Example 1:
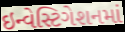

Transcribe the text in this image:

ઇન્વેસ્ટિગેશનમાં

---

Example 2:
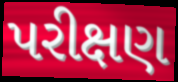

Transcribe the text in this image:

પરીક્ષણ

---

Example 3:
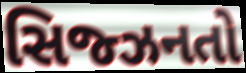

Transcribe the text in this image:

સિજ્ઝનતો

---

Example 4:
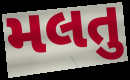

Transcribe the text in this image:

મલતુ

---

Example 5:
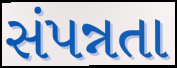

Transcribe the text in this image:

સંપન્નતા